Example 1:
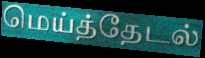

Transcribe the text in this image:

மெய்த்தேடல்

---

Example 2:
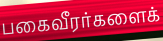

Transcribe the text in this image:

பகைவீரர்களைக்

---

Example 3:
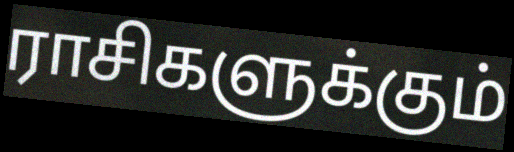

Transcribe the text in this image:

ராசிகளுக்கும்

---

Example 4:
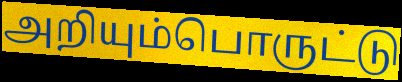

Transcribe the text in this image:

அறியும்பொருட்டு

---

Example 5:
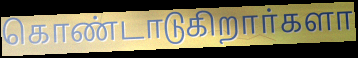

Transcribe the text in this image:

கொண்டாடுகிறார்களா